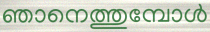
ഞാനെത്തുമ്പോൾ